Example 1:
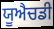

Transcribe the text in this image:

ਯੂਐਚਡੀ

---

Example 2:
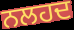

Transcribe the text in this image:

ਨਲਹਦ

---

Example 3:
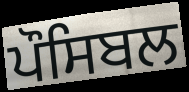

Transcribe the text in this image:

ਪੌਸਿਬਲ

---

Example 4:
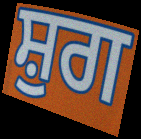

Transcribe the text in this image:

ਸ਼ੁਗ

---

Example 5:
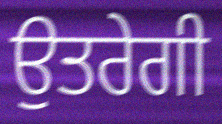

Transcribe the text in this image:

ਉਤਰੇਗੀ